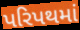
પરિપથમાં